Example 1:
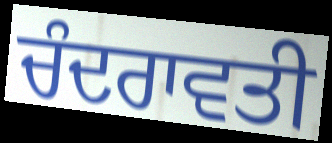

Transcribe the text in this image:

ਚੰਦਰਾਵਤੀ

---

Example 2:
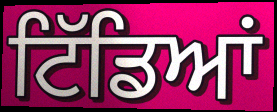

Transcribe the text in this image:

ਟਿੱਡਿਆਂ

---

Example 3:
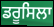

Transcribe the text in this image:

ਡਰੂਸਿਲਾ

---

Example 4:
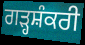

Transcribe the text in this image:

ਗੜ੍ਹਸ਼ੰਕਰੀ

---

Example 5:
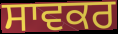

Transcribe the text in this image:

ਸਾਵਕਰ